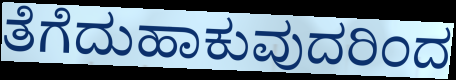
ತೆಗೆದುಹಾಕುವುದರಿಂದ